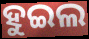
ହୁଇଲ